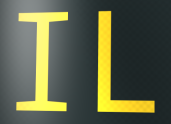
IL